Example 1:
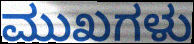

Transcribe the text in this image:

ಮುಖಗಳು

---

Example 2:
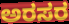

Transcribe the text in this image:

ಅರಸರ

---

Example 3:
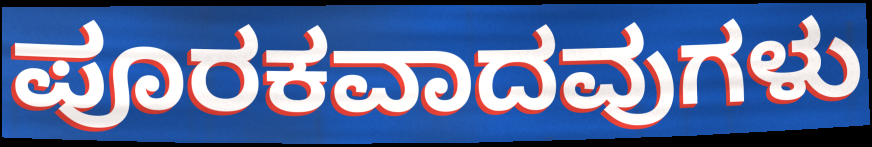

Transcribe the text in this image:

ಪೂರಕವಾದವುಗಳು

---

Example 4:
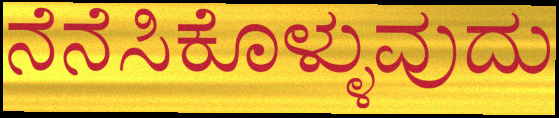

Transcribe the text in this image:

ನೆನೆಸಿಕೊಳ್ಳುವುದು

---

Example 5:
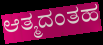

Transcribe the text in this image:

ಆತ್ಮದಂತಹ